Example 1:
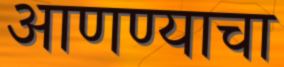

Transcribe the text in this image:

आणण्याचा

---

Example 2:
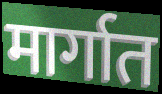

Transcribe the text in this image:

मार्गात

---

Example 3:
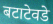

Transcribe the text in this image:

बटाटेवडे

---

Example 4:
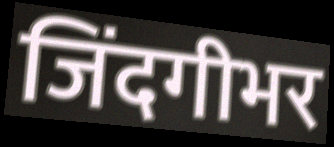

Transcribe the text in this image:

जिंदगीभर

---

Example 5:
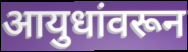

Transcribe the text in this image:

आयुधांवरून